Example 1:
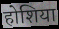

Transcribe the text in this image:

होशिया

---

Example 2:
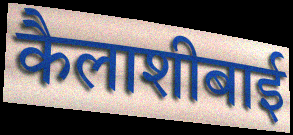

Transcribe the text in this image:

कैलाशीबाई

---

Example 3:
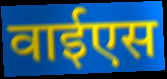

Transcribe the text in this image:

वाईएस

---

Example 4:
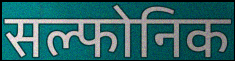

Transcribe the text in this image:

सल्फोनिक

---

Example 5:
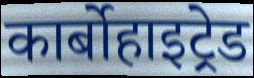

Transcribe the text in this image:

कार्बोहाइट्रेड